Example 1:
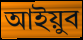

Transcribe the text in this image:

আইয়ুব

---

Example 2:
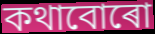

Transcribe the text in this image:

কথাবোৰো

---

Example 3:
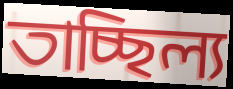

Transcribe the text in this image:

তাচ্ছিল্য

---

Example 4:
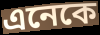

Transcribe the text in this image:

এনেকে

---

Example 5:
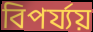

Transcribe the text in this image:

বিপৰ্য্যয়